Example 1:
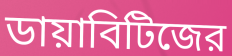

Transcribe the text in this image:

ডায়াবিটিজের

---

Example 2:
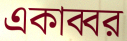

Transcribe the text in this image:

একাব্বর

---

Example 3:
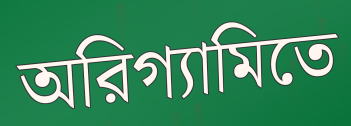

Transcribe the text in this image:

অরিগ্যামিতে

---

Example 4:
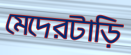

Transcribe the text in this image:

মেদেরটাড়ি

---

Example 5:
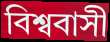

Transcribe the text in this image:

বিশ্ববাসী